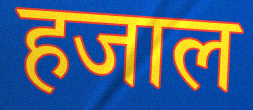
हजाल